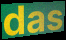
das